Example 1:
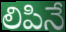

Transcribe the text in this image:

లిపినే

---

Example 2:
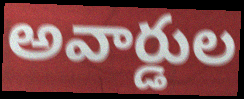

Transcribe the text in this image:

అవార్డుల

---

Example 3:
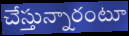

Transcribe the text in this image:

చేస్తున్నారంటూ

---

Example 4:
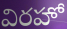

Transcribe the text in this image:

విరహో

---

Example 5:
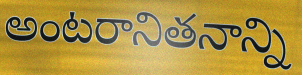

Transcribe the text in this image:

అంటరానితనాన్ని